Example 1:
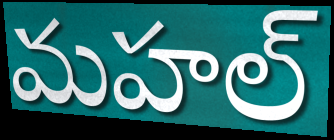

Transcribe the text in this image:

మహల్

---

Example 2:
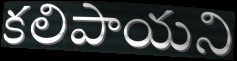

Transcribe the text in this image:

కలిపాయని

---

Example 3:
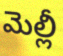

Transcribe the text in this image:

మెల్లీ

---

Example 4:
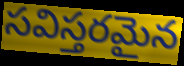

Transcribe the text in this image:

సవిస్తరమైన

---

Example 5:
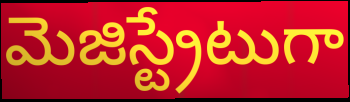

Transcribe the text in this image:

మెజిస్ట్రేటుగా